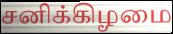
சனிக்கிழமை